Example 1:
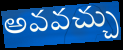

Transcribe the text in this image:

అవవచ్చు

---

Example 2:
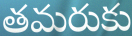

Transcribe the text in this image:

తమరుకు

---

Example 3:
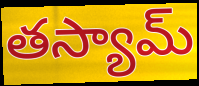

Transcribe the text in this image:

తస్యామ్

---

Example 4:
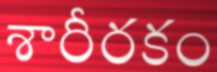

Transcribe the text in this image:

శారీరకం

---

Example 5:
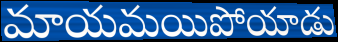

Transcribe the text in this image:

మాయమయిపోయాడు